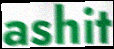
ashit